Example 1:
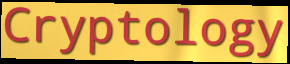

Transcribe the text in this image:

Cryptology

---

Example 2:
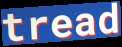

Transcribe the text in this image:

tread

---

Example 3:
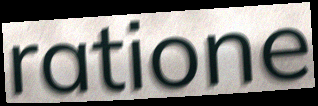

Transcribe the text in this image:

ratione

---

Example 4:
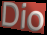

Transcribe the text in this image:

Dio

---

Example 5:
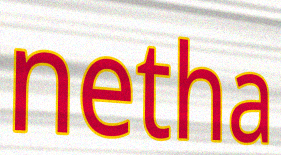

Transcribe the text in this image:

netha